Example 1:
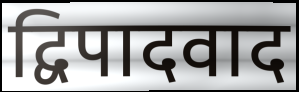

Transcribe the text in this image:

द्विपादवाद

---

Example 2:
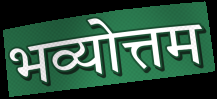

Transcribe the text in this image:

भव्योत्तम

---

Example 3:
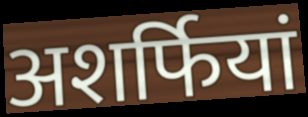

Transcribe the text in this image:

अशर्फियां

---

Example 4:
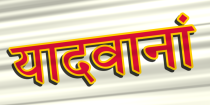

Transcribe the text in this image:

यादवानां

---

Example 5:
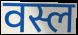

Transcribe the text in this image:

वस्ल